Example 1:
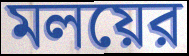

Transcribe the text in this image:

মলয়ের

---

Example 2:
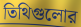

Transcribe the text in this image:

তিথিগুলোর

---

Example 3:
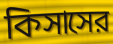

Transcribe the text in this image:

কিসাসের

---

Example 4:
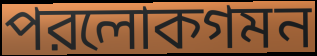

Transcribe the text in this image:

পরলোকগমন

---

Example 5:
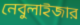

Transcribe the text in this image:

নেবুলাইজার